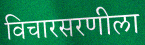
विचारसरणीला